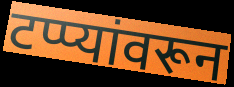
टप्प्यांवरून